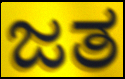
ಜತ